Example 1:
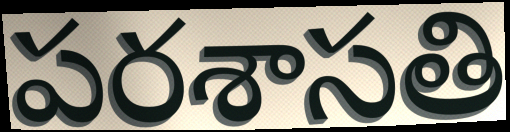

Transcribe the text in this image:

పరశాసతి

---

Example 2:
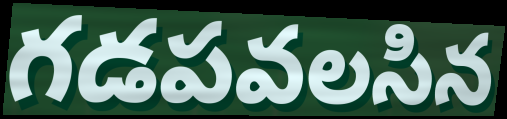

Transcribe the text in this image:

గడపవలసిన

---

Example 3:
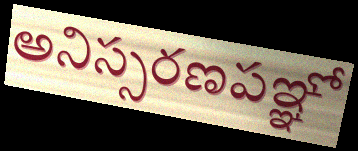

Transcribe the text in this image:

అనిస్సరణపఞ్ఞో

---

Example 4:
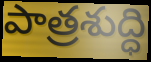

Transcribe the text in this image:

పాత్రశుద్ధి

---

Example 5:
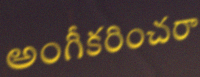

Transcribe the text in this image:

అంగీకరించరా